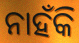
ନାହଁକି